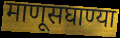
माणूसघाण्या